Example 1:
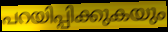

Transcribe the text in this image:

പറയിപ്പിക്കുകയും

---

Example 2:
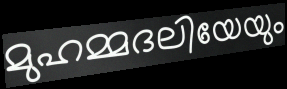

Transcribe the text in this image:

മുഹമ്മദലിയേയും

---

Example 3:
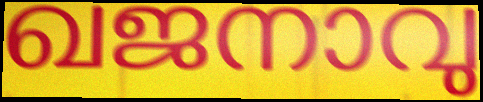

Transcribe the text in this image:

ഖജനാവു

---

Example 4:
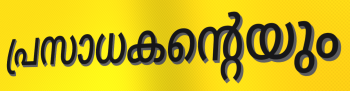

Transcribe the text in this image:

പ്രസാധകന്റെയും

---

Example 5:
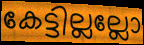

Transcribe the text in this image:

കേട്ടില്ലല്ലോ